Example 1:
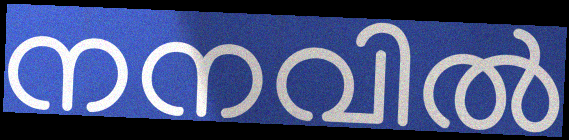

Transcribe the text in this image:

നനവിൽ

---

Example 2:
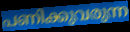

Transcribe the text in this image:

പണിക്കുവരുന്ന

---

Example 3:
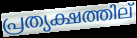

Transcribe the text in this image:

പ്രത്യക്ഷത്തില്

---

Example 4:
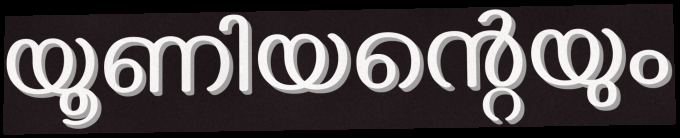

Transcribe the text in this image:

യൂണിയന്റെയും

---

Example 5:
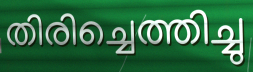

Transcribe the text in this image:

തിരിച്ചെത്തിച്ചു